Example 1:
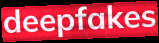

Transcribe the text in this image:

deepfakes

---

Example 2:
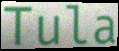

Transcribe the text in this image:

Tula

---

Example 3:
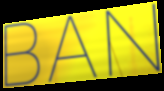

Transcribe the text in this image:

BAN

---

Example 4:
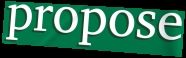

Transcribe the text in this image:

propose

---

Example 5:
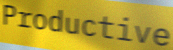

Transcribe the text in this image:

Productive